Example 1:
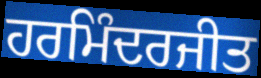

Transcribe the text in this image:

ਹਰਮਿੰਦਰਜੀਤ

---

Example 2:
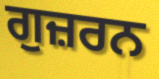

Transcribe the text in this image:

ਗੁਜ਼ਰਨ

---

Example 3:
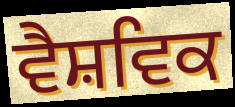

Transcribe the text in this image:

ਵੈਸ਼ਵਿਕ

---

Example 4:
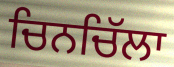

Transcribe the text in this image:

ਚਿਨਚਿੱਲਾ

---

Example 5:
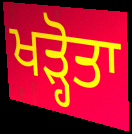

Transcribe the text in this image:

ਖੜ੍ਹੋਤਾ